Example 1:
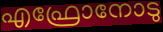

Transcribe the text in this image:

എഫ്രോനോടു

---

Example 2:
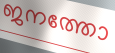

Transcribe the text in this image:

ജനത്തോ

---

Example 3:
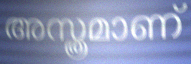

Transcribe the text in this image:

അസ്ത്രമാണ്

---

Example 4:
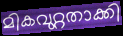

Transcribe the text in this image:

മികവുറ്റതാക്കി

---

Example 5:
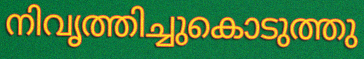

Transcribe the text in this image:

നിവൃത്തിച്ചുകൊടുത്തു